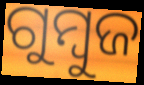
ଗୁମ୍ବୁଜ